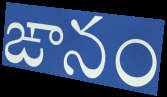
ఙానం